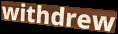
withdrew